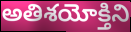
అతిశయోక్తిని